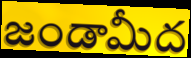
జండామీద